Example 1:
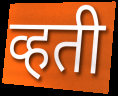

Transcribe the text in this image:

व्हती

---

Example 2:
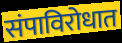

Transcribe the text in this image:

संपाविरोधात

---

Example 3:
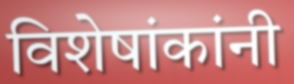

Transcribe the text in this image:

विशेषांकांनी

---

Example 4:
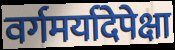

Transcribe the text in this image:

वर्गमर्यादेपेक्षा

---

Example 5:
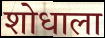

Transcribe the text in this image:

शोधाला